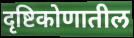
दृष्टिकोणातील